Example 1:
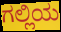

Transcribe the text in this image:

ಗಲ್ಲಿಯ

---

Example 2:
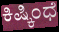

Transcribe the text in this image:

ಕಿಷ್ಕಿಂಧೆ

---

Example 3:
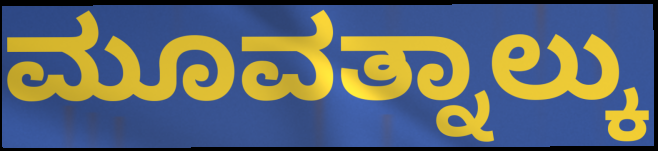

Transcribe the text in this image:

ಮೂವತ್ನಾಲ್ಕು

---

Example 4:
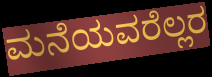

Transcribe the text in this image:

ಮನೆಯವರೆಲ್ಲರ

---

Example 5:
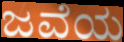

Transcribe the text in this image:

ಜವೆಯ